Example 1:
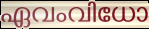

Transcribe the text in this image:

ഏവംവിധോ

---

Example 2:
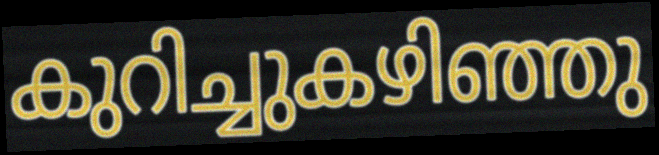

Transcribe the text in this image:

കുറിച്ചുകഴിഞ്ഞു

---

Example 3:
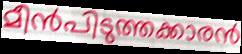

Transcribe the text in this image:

മീൻപിടുത്തക്കാരൻ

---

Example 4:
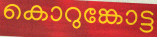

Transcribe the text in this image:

കൊറുങ്കോട്ട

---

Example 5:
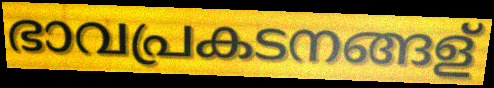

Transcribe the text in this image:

ഭാവപ്രകടനങ്ങള്